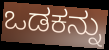
ಒಡಕನ್ನು